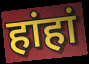
हांहां